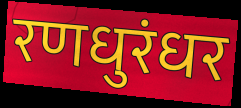
रणधुरंधर